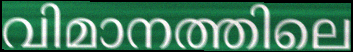
വിമാനത്തിലെ